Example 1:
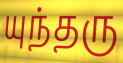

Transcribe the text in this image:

யுந்தரு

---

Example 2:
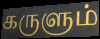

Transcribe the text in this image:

கருளும்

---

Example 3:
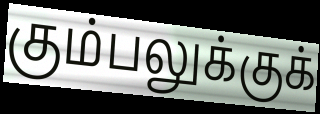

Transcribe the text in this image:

கும்பலுக்குக்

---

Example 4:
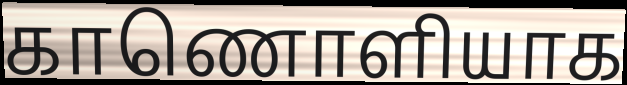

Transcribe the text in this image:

காணொளியாக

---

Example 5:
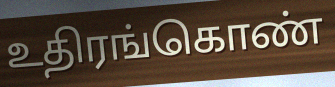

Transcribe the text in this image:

உதிரங்கொண்